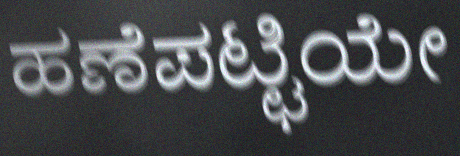
ಹಣೆಪಟ್ಟಿಯೇ